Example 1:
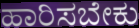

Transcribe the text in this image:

ಹಾರಿಸಬೇಕು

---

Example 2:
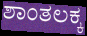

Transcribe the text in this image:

ಶಾಂತಲಕ್ಕ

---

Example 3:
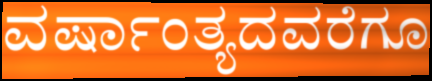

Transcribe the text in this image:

ವರ್ಷಾಂತ್ಯದವರೆಗೂ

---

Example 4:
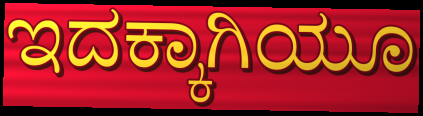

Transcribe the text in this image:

ಇದಕ್ಕಾಗಿಯೂ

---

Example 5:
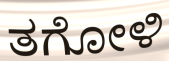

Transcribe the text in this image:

ತಗೋಳಿ